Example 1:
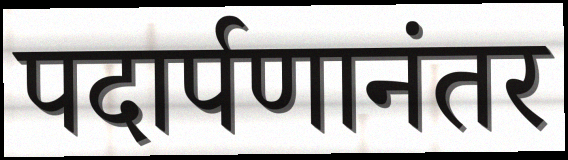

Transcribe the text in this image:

पदार्पणानंतर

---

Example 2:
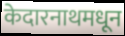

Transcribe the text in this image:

केदारनाथमधून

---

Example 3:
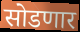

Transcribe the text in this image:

सोडणार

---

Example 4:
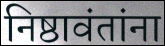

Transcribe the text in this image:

निष्ठावंतांना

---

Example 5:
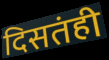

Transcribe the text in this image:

दिसतंही